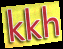
kkh